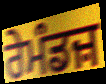
ਰੇਮੰਡਜ਼